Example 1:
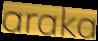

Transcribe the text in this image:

araka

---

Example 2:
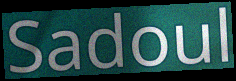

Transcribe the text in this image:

Sadoul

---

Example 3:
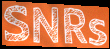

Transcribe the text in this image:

SNRs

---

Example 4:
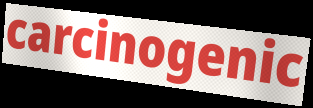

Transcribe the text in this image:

carcinogenic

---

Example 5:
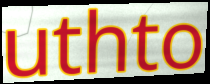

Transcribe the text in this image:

uthto